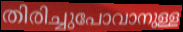
തിരിച്ചുപോവാനുള്ള